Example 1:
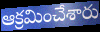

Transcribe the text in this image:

ఆక్రమించేశారు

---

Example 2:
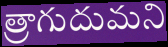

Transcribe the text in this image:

త్రాగుదుమని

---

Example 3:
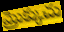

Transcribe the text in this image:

మ్రొక్కుచు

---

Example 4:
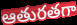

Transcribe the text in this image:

ఆతురతగా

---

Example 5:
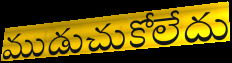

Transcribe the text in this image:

ముడుచుకోలేదు